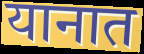
यानात